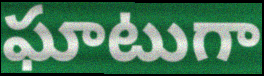
ఘాటుగా